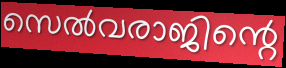
സെൽവരാജിന്റെ